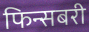
फिन्सबरी